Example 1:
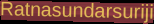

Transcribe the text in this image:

Ratnasundarsuriji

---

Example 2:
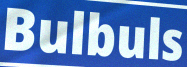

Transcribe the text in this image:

Bulbuls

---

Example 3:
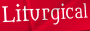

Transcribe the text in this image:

Liturgical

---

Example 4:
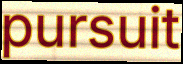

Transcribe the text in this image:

pursuit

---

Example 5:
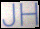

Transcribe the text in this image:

JH